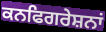
ਕਨਫਿਗਰੇਸ਼ਨਾਂ